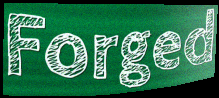
Forged